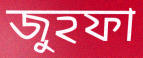
জুহফা